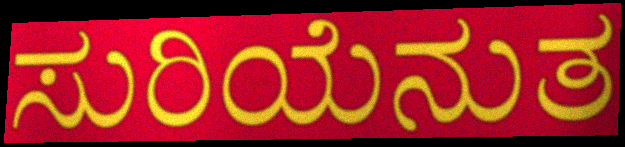
ಸುರಿಯೆನುತ